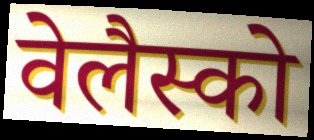
वेलैस्को